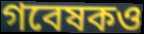
গবেষকও